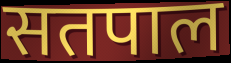
सतपाल